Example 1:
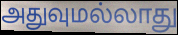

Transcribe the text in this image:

அதுவுமல்லாது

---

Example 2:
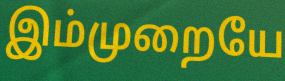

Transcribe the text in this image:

இம்முறையே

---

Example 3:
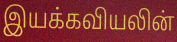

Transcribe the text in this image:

இயக்கவியலின்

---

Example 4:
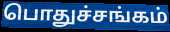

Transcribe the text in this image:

பொதுச்சங்கம்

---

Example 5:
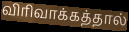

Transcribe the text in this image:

விரிவாக்கத்தால்